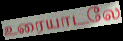
உரையாடலே